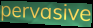
pervasive